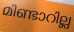
മിണ്ടാറില്ല